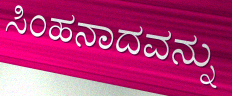
ಸಿಂಹನಾದವನ್ನು